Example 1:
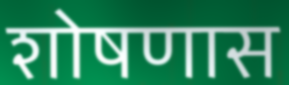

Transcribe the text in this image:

शोषणास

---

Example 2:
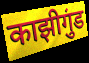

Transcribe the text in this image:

काझीगुंड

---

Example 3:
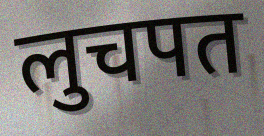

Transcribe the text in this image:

लुचपत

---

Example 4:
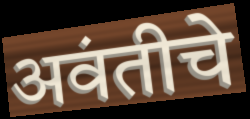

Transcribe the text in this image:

अवंतीचे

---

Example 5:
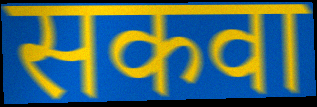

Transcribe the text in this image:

सकवा